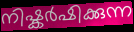
നിഷ്കർഷിക്കുന്ന